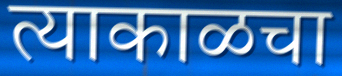
त्याकाळचा